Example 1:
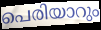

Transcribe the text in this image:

പെരിയാറും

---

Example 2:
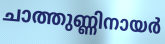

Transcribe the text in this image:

ചാത്തുണ്ണിനായർ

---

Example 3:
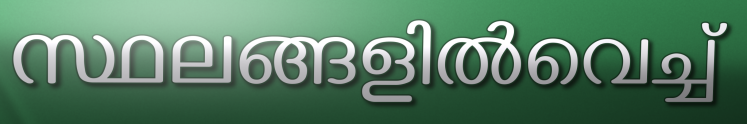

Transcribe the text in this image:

സ്ഥലങ്ങളിൽവെച്ച്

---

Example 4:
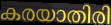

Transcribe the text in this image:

കരയാതിരി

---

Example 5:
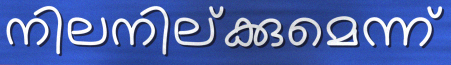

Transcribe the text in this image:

നിലനില്ക്കുമെന്ന്